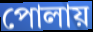
পোলায়